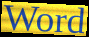
Word